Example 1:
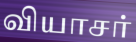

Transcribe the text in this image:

வியாசர்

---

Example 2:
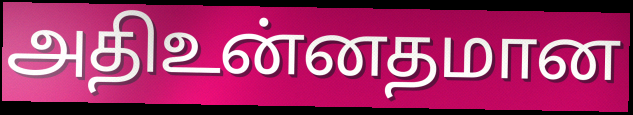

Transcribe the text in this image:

அதிஉன்னதமான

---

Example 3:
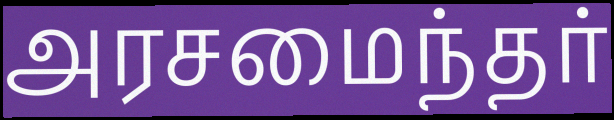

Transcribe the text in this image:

அரசமைந்தர்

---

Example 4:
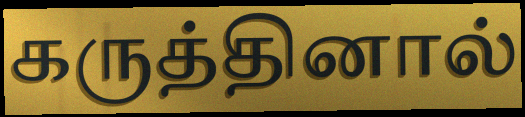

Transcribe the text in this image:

கருத்தினால்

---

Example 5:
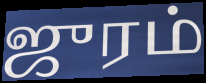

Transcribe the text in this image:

ஜுரம்